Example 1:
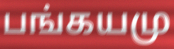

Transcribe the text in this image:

பங்கயமு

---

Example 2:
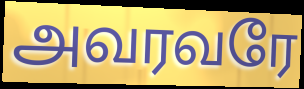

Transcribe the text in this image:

அவரவரே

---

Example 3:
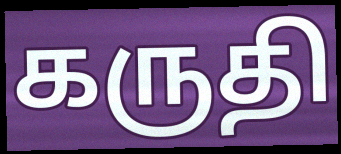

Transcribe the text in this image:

கருதி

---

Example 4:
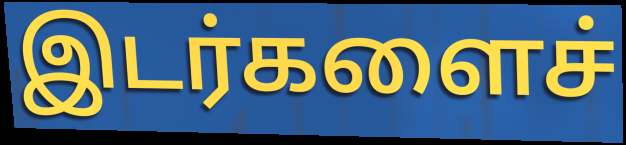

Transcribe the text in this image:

இடர்களைச்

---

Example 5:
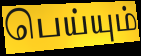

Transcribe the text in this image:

பெய்யும்